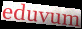
eduvum